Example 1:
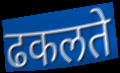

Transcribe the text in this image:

ढकलते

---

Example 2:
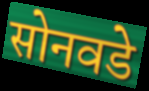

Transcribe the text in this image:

सोनवडे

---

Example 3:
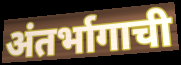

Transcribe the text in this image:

अंतर्भागाची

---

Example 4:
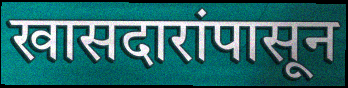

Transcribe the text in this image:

खासदारांपासून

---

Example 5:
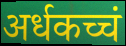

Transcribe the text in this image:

अर्धकच्चं